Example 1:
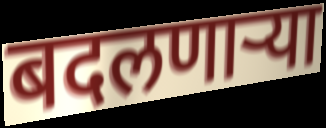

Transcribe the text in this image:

बदलणाऱ्या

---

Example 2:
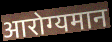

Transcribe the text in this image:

आरोग्यमान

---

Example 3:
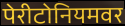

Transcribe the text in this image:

पेरीटोनियमवर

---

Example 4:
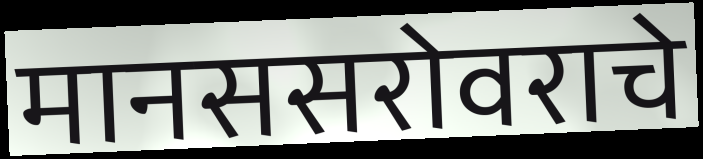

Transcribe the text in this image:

मानससरोवराचे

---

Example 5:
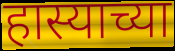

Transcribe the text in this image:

हास्याच्या